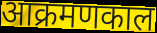
आक्रमणकाल